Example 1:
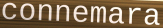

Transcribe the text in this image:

connemara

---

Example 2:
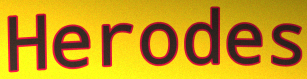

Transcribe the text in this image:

Herodes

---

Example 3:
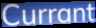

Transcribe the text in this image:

Currant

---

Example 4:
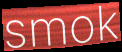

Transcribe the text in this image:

smok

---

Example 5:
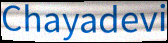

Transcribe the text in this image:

Chayadevi